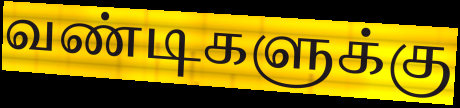
வண்டிகளுக்கு